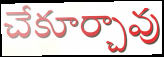
చేకూర్చావు